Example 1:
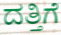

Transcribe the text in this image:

ದತ್ತಿಗೆ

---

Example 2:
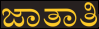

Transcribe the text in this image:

ಜಾತಾತಿ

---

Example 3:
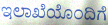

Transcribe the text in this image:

ಇಲಾಖೆಯೊಂದಿಗೆ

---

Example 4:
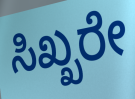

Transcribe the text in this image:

ಸಿಖ್ಖರೇ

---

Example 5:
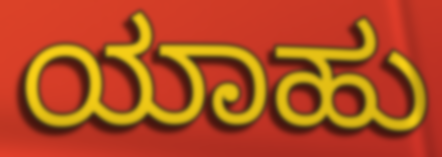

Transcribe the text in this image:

ಯಾಹು